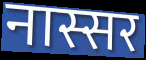
नास्सर